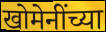
खोमेनींच्या